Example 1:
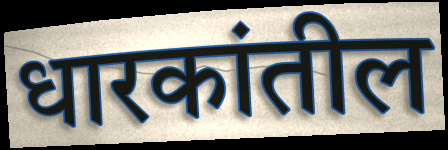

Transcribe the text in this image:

धारकांतील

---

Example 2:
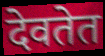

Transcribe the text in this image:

देवतेत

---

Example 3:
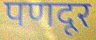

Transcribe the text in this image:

पणदूर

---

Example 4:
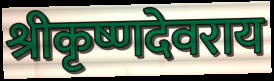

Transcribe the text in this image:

श्रीकृष्णदेवराय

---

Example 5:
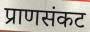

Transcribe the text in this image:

प्राणसंकट